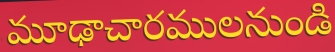
మూఢాచారములనుండి